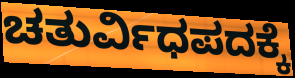
ಚತುರ್ವಿಧಪದಕ್ಕೆ